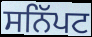
ਸਨਿੱਪਟ